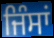
ਜਿੰਸਾਂ